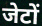
जेटों